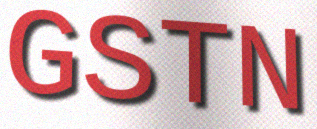
GSTN